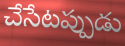
చేసేటప్పుడు